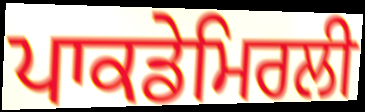
ਪਾਕਡੇਮਿਰਲੀ